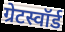
ग्रेटस्वॉर्ड